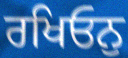
ਰਖਿਓਨੁ